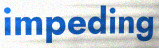
impeding